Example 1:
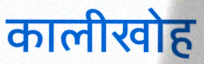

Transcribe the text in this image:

कालीखोह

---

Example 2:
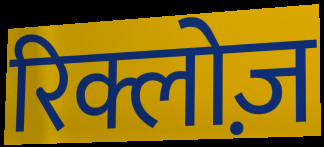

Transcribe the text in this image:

रिक्लोज़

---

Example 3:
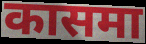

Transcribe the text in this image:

कासमा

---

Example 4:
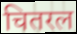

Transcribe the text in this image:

चितरल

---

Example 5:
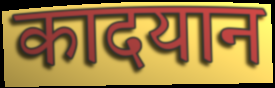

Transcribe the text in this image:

कादयान